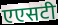
एएसटी